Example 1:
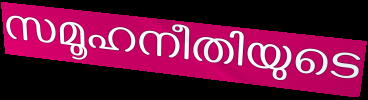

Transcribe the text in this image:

സമൂഹനീതിയുടെ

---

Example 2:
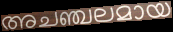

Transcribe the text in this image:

അചഞ്ചലമായ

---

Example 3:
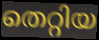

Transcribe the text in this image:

തെറ്റിയ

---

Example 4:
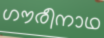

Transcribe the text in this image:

ഗൗരീനാഥ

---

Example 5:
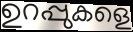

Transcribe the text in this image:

ഉറപ്പുകളെ